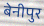
बेनीपुर